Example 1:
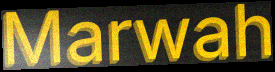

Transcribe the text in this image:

Marwah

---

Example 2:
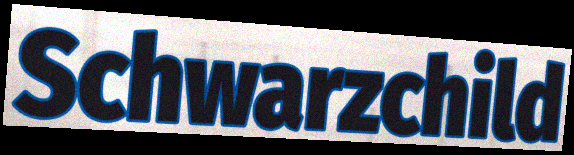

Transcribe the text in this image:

Schwarzchild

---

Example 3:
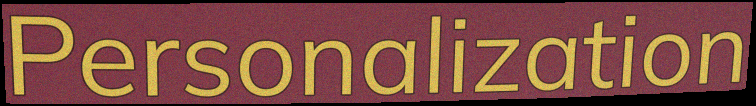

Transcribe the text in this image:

Personalization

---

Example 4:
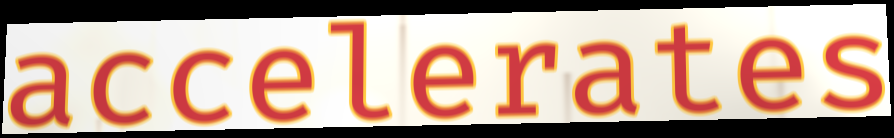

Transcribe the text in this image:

accelerates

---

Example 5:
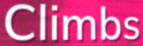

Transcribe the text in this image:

Climbs